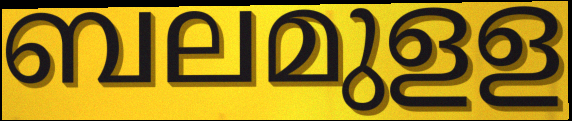
ബലമുളള